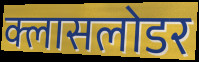
क्लासलोडर